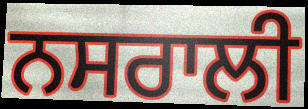
ਨਸਰਾਲੀ